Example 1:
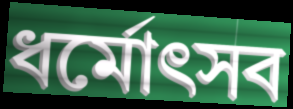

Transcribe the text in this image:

ধর্মোৎসব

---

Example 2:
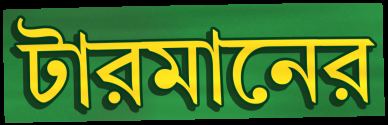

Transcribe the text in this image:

টারমানের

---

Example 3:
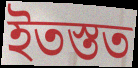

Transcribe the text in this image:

ইতস্তত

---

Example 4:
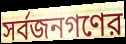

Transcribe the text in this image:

সর্বজনগণের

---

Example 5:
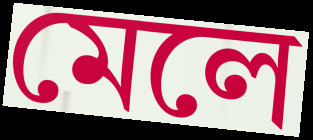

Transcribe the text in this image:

মেলে